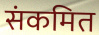
संकमित